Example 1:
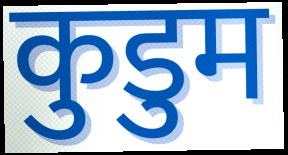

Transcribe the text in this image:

कुडुम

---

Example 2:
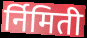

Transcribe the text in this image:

र्निमिती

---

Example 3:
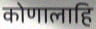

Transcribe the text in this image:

कोणालाहि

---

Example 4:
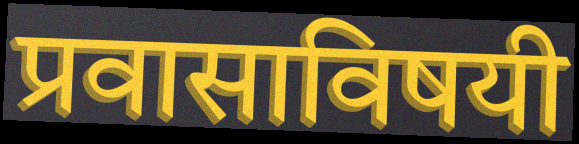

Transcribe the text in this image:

प्रवासाविषयी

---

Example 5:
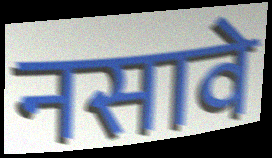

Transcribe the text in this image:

नसावे